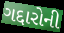
ગદ્દારોની